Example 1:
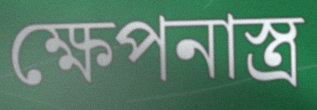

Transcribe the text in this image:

ক্ষেপনাস্ত্র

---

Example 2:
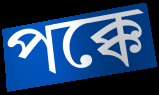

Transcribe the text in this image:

পক্কে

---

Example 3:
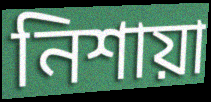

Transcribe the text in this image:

নিশায়া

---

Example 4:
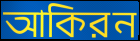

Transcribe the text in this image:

আকিরন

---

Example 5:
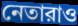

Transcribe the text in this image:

নেতারাও